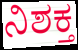
ನಿಶಕ್ತ